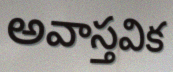
అవాస్తవిక